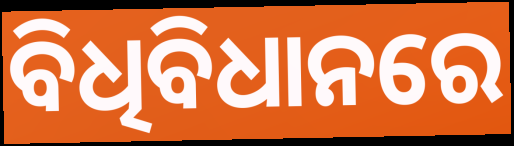
ବିଧିବିଧାନରେ